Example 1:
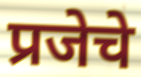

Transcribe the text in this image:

प्रजेचे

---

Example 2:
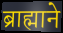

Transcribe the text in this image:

ब्राह्माने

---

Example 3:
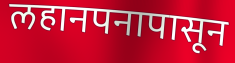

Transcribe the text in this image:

लहानपनापासून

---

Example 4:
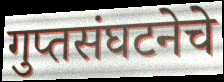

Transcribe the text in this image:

गुप्तसंघटनेचे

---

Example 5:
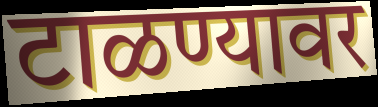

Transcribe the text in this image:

टाळण्यावर